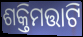
ଶକ୍ତିମତ୍ତାଟି